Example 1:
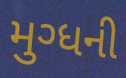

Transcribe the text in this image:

મુગ્ધની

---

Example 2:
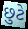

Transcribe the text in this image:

છુટે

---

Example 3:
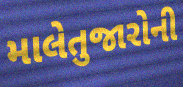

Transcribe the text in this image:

માલેતુજારોની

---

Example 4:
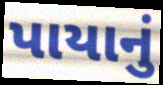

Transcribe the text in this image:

પાયાનું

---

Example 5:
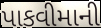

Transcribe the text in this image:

પાકવીમાની